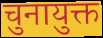
चुनायुक्त